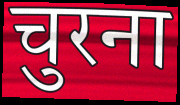
चुरना